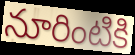
నూరింటికి